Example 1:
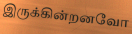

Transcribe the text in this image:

இருக்கின்றனவோ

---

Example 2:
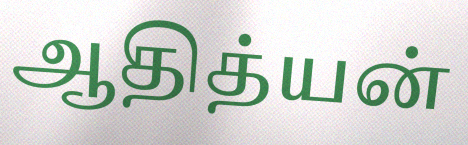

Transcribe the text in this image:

ஆதித்யன்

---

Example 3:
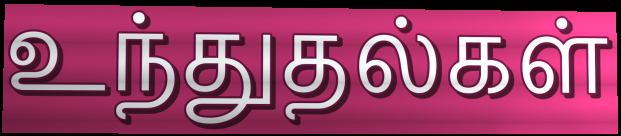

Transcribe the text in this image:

உந்துதல்கள்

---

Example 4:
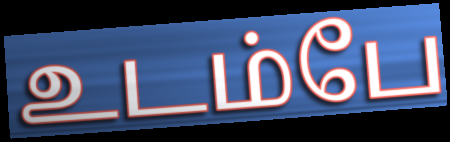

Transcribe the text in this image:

உடம்பே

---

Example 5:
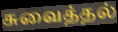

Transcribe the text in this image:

சுவைத்தல்